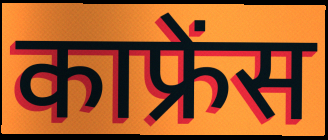
काफ्रेंस